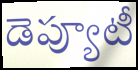
డెప్యూటీ